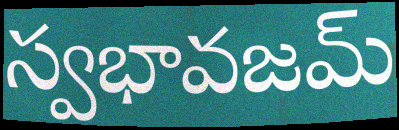
స్వభావజమ్